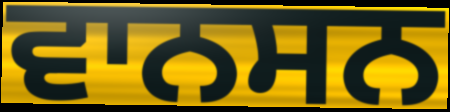
ਵਾਨਸਨ